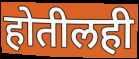
होतीलही